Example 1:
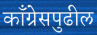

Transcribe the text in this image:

काँग्रेसपुढील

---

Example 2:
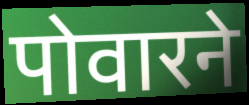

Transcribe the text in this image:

पोवारने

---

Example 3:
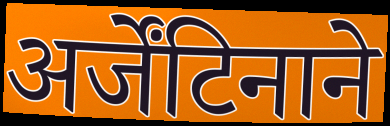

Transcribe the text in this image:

अर्जेंटिनाने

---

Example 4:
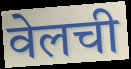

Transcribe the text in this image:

वेलची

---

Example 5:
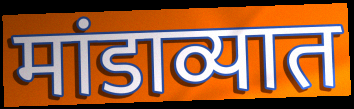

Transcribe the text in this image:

मांडाव्यात